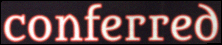
conferred